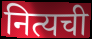
नित्यची